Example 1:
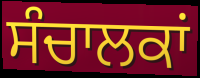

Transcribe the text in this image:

ਸੰਚਾਲਕਾਂ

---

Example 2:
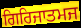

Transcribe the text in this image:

ਗਿਰਿਜਾਤਮਜ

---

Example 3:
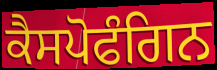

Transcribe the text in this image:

ਕੈਸਪੋਫੰਗਿਨ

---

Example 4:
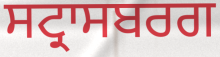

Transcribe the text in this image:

ਸਟ੍ਰਾਸਬਰਗ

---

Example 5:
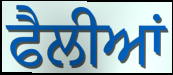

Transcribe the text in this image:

ਫੈਲੀਆਂ